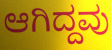
ಆಗಿದ್ದವು